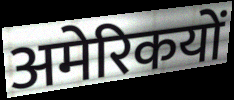
अमेरिकयों